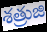
శత్రుజి